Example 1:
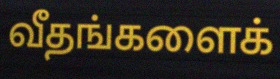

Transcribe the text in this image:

வீதங்களைக்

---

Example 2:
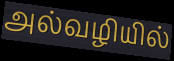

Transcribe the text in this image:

அல்வழியில்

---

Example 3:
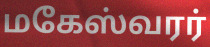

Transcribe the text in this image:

மகேஸ்வரர்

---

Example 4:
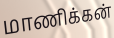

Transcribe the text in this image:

மாணிக்கன்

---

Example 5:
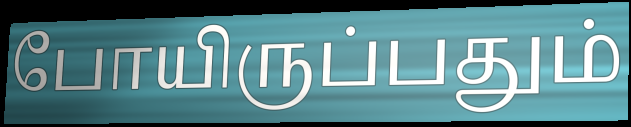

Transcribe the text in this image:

போயிருப்பதும்